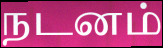
நடனம்